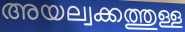
അയല്വക്കത്തുള്ള